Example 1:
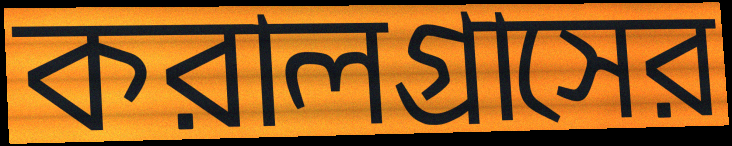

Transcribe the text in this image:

করালগ্রাসের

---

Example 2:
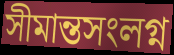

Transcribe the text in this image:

সীমান্তসংলগ্ন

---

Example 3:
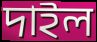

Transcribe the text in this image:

দাইল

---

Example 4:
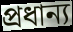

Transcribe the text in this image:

প্রধান্য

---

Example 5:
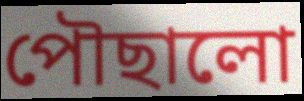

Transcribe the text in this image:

পৌছালো